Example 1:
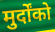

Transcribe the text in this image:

मुर्दोंको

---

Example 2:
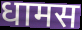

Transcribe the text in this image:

धामस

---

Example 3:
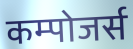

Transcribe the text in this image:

कम्पोजर्स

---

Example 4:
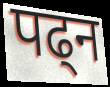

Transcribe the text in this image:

पढ्न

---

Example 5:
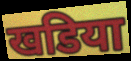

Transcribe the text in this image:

खडिया